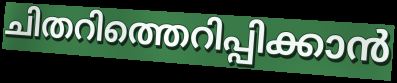
ചിതറിത്തെറിപ്പിക്കാൻ